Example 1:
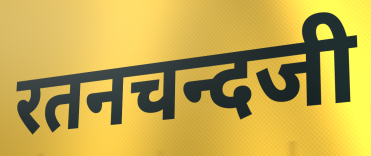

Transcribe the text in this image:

रतनचन्दजी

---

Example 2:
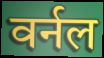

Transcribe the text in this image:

वर्नल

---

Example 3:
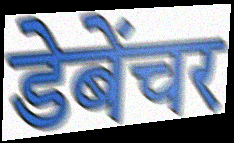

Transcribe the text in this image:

डेबेंचर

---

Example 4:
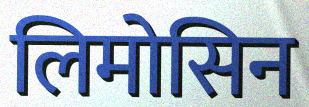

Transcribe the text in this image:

लिमोसिन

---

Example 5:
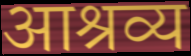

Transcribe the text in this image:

आश्रव्य